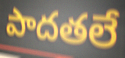
పాదతలే